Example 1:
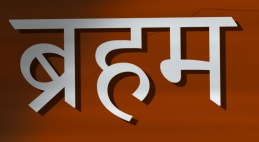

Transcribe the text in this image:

ब्रहम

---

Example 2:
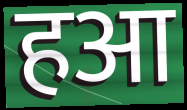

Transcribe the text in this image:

हआ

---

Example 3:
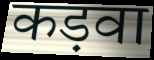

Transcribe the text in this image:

कड़वा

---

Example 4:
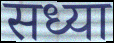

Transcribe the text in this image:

सध्या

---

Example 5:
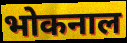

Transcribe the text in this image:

भोकनाल